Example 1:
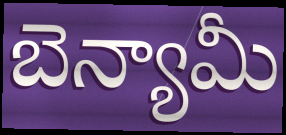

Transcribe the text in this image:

బెన్యామీ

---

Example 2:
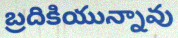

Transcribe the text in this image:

బ్రదికియున్నావు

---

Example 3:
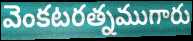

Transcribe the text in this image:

వెంకటరత్నముగారు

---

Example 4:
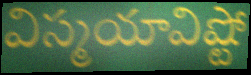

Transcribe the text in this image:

విస్మయావిష్టో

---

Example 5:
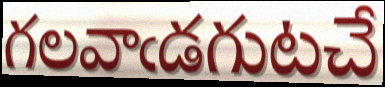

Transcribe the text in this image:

గలవాఁడగుటచే